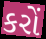
કરોં